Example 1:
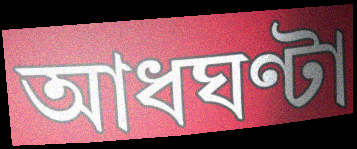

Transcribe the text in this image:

আধঘণ্টা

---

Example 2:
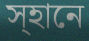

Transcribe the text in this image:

স্হানে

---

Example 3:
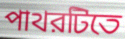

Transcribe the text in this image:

পাথরটিতে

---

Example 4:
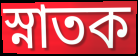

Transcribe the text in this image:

স্নাতক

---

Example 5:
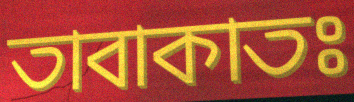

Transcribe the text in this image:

তাবাকাতঃ